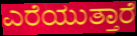
ಎರೆಯುತ್ತಾರೆ